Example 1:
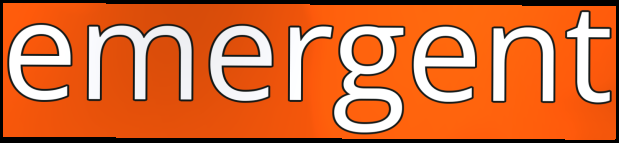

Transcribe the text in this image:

emergent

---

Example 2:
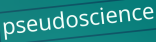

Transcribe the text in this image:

pseudoscience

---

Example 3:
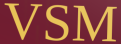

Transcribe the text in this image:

VSM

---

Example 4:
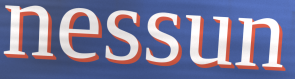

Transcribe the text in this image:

nessun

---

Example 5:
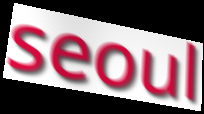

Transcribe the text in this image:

seoul